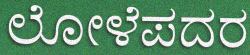
ಲೋಳೆಪದರ